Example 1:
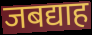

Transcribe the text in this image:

जबद्याह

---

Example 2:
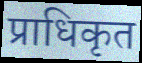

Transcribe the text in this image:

प्राधिकृत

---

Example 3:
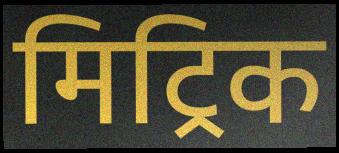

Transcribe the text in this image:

मिट्रिक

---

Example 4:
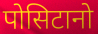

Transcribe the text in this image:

पोसिटानो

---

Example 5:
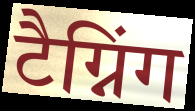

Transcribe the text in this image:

टैग्निंग